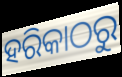
ହରିକାଠରୁ